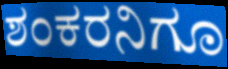
ಶಂಕರನಿಗೂ